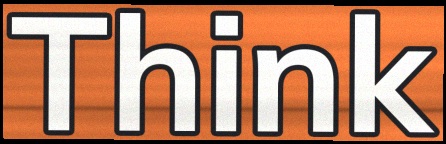
Think